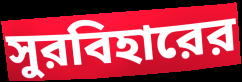
সুরবিহারের